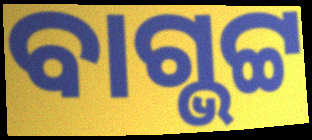
ବାଗ୍ଭଟ୍ଟ